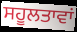
ਸਹੂਲਤਾਵਾਂ